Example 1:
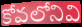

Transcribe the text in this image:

కోవలోనివి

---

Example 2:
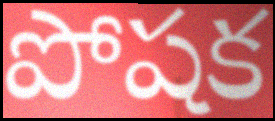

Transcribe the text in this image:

పోషక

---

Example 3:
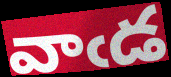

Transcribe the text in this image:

వాఁడ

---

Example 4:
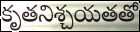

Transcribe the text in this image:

కృతనిశ్చయతతో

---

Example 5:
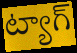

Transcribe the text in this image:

ట్యాగ్